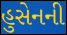
હુસેનની